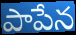
పాపేన